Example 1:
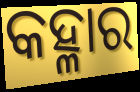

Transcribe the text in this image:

କହ୍ଳାର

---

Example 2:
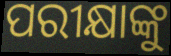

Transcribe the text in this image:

ପରୀକ୍ଷାଙ୍କୁ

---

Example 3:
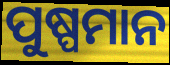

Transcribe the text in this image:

ପୁଷ୍ପମାନ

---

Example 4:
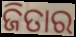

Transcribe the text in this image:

ଜିତାର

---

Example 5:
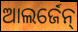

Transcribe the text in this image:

ଆଲର୍ଜେନ୍